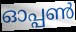
ഓപ്പൺ